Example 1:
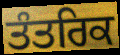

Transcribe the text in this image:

ਤੰਤਰਿਕ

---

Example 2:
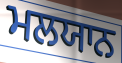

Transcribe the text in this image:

ਮਲਯਾਨ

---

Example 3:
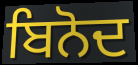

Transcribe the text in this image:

ਬਿਨੋਦ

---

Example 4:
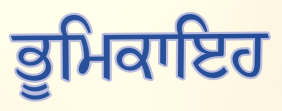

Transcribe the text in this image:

ਭੂਮਿਕਾਇਹ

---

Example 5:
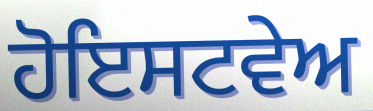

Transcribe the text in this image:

ਹੋਇਸਟਵੇਅ